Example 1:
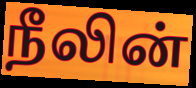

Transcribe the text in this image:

நீலின்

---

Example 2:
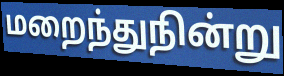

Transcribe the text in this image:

மறைந்துநின்று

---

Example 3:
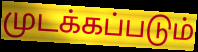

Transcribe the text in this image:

முடக்கப்படும்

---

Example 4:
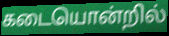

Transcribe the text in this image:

கடையொன்றில்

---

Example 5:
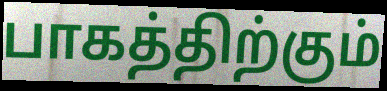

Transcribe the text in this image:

பாகத்திற்கும்